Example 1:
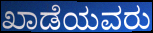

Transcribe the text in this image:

ಖಾಡೆಯವರು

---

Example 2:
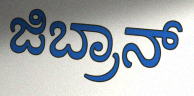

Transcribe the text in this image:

ಜಿಬ್ರಾನ್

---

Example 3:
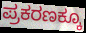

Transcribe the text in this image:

ಪ್ರಕರಣಕ್ಕೂ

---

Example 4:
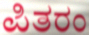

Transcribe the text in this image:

ಪಿತರಂ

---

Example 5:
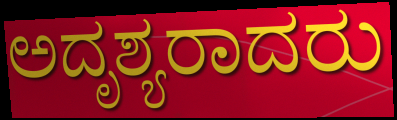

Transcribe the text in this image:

ಅದೃಶ್ಯರಾದರು